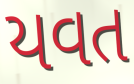
યવત